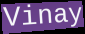
Vinay